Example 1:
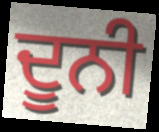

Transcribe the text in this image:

ਦੂਨੀ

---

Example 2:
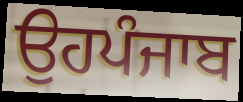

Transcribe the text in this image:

ਉਹਪੰਜਾਬ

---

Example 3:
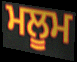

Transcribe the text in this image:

ਮਲੂਮ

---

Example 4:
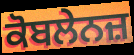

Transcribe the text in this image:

ਕੋਬਲੇਨਜ਼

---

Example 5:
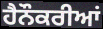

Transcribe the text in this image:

ਹੈਨੌਕਰੀਆਂ